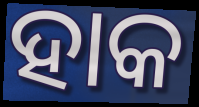
ହାକ